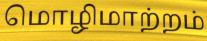
மொழிமாற்றம்